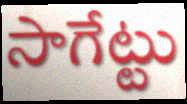
సాగేట్టు